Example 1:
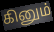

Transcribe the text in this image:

கினும்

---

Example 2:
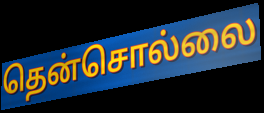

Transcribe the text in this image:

தென்சொல்லை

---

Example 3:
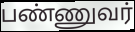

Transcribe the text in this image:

பண்ணுவர்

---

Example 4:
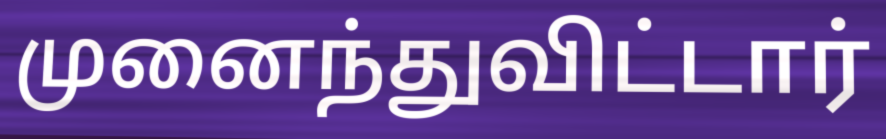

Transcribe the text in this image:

முனைந்துவிட்டார்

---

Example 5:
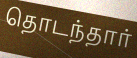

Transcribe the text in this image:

தொடந்தார்